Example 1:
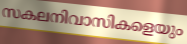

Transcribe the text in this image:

സകലനിവാസികളെയും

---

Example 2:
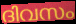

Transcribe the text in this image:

ദിവസം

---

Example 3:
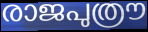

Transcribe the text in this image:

രാജപുത്രൗ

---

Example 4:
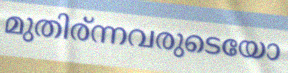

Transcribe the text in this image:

മുതിര്ന്നവരുടെയോ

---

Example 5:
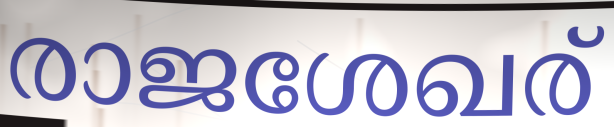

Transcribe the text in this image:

രാജശേഖര്